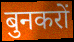
बुनकरों